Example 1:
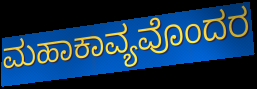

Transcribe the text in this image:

ಮಹಾಕಾವ್ಯವೊಂದರ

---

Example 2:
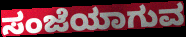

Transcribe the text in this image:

ಸಂಜೆಯಾಗುವ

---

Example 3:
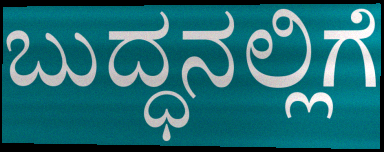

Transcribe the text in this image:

ಬುದ್ಧನಲ್ಲಿಗೆ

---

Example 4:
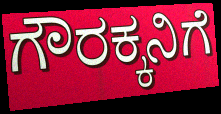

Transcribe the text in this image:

ಗೌರಕ್ಕನಿಗೆ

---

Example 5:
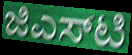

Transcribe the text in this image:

ಜಿಎಸ್‌ಟಿ